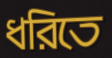
ধরিতে